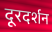
दूरदर्शन